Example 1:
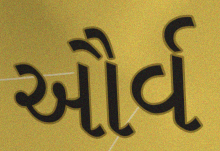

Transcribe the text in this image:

ઔર્વ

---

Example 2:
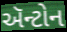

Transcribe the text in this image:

ઍન્ટોન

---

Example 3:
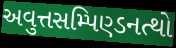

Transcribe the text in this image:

અવુત્તસમ્પિણ્ડનત્થો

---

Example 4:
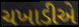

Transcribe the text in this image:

ચખાડીએ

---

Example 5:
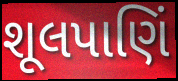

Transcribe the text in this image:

શૂલપાણિં